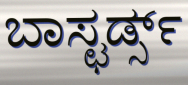
ಬಾಸ್ಟರ್ಡ್ಸ್